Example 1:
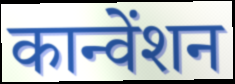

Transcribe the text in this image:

कान्वेंशन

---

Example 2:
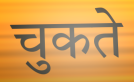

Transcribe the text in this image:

चुकते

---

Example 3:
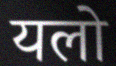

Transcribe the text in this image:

यलो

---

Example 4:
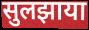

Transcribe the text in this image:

सुलझाया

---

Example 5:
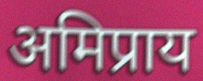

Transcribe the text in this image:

अमिप्राय